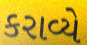
કરાવ્યે